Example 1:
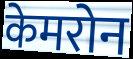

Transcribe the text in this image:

केमरोन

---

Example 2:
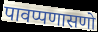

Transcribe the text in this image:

पावप्पणासणो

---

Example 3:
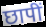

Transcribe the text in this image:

छापीं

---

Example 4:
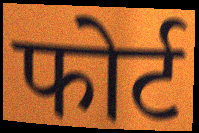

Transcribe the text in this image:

फोर्ट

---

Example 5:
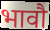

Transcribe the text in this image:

भावौ